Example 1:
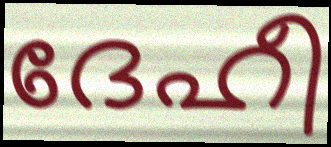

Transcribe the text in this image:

ദേഹീ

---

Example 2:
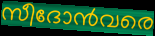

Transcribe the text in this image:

സീദോൻവരെ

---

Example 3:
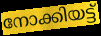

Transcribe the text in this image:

നോക്കിയട്ട്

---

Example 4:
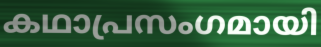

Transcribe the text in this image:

കഥാപ്രസംഗമായി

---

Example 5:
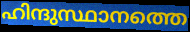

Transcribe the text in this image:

ഹിന്ദുസ്ഥാനത്തെ